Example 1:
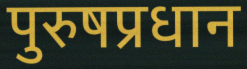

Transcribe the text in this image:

पुरुषप्रधान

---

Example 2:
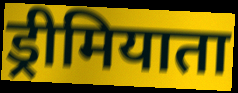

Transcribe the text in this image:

ड्रीमियाता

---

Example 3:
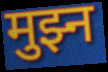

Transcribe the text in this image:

मुझ्न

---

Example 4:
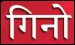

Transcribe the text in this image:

गिनो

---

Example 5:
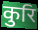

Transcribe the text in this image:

कुरि